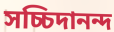
সচ্চিদানন্দ